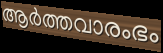
ആർത്തവാരംഭം